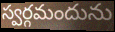
స్వర్గమందును